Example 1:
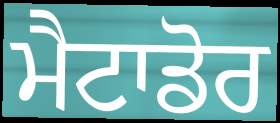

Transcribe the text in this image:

ਮੈਟਾਡੋਰ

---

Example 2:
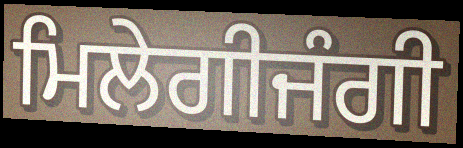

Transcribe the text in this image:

ਮਿਲੇਗੀਜੰਗੀ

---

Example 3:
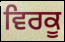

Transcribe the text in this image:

ਵਿਰਕੂ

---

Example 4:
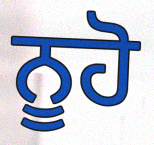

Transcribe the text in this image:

ਨੂਹੋ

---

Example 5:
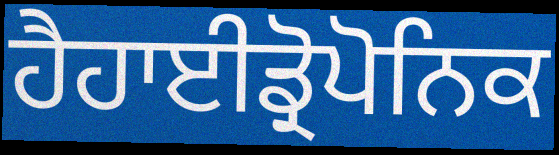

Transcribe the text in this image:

ਹੈਹਾਈਡ੍ਰੋਪੋਨਿਕ